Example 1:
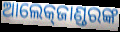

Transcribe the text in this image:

ଆଲେକ୍‌ଜାଣ୍ଡରଙ୍କ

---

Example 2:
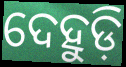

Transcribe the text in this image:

ଦେହୁଡ଼ି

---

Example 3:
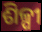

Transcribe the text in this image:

ଶିଳ୍ପୀ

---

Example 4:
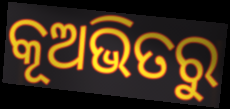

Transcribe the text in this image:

କୂଅଭିତରୁ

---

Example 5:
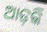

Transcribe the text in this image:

ଆଡ଼କି